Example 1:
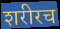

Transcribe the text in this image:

शरीरच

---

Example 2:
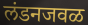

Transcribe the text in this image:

लंडनजवळ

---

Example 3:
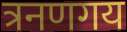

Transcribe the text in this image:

त्रनणगय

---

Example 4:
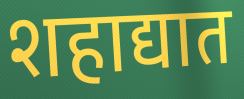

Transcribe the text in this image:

शहाद्यात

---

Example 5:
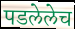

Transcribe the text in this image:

पडलेलेच